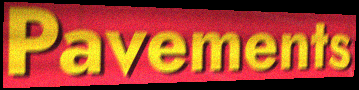
Pavements